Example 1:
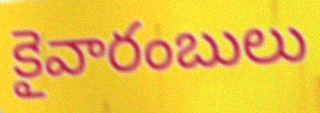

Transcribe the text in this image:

కైవారంబులు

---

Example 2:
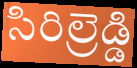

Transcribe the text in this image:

సిరిల్రెడ్డి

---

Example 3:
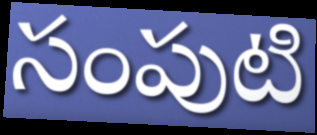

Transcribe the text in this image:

సంపుటి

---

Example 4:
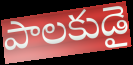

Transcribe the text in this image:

పాలకుడై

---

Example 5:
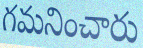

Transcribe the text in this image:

గమనించారు